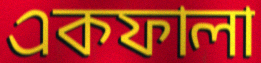
একফালা